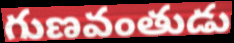
గుణవంతుడు